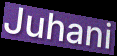
Juhani